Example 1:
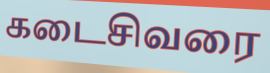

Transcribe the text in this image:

கடைசிவரை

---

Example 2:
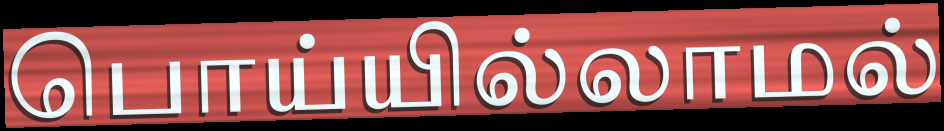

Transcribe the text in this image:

பொய்யில்லாமல்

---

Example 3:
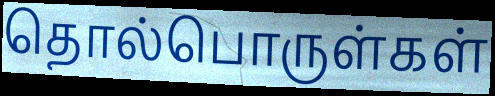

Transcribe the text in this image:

தொல்பொருள்கள்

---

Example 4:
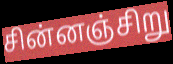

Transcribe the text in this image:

சின்னஞ்சிறு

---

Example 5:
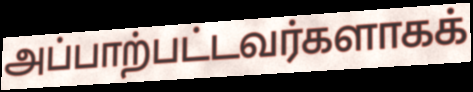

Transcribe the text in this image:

அப்பாற்பட்டவர்களாகக்